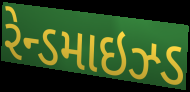
રેન્ડમાઇઝ્ડ